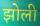
झोली